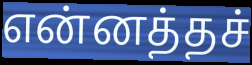
என்னத்தச்